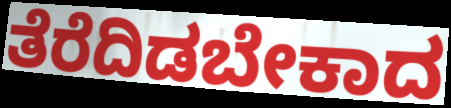
ತೆರೆದಿಡಬೇಕಾದ